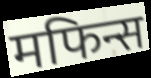
मफिन्स